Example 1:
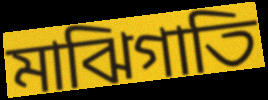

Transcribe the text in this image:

মাঝিগাতি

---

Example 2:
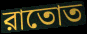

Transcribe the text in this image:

রাতোত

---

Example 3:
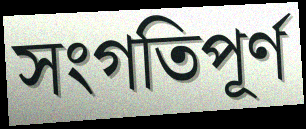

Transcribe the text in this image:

সংগতিপূর্ণ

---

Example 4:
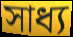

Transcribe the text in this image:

সাধ্য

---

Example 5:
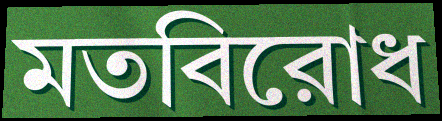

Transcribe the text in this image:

মতবিরোধ